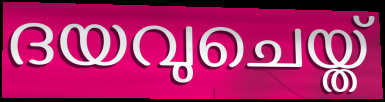
ദയവുചെയ്ത്